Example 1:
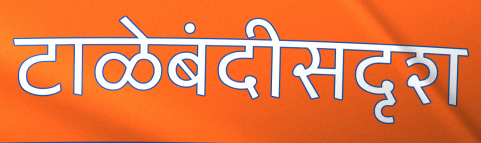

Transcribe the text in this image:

टाळेबंदीसदृश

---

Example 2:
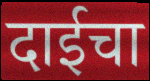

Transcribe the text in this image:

दाईचा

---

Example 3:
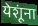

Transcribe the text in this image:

येशूंना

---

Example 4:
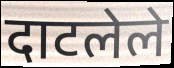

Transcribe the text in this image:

दाटलेले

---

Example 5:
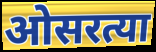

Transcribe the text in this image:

ओसरत्या